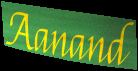
Aanand